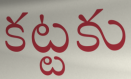
కట్టకు